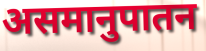
असमानुपातन